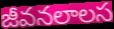
జీవనలాలస